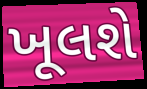
ખૂલશે